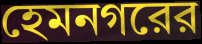
হেমনগরের